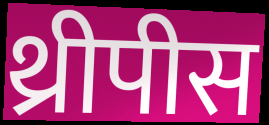
थ्रीपीस